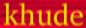
khude